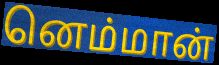
னெம்மான்